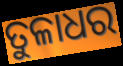
ତୁଳାଧର